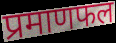
प्रमाणफल